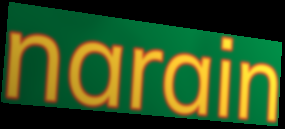
narain